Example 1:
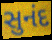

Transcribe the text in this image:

સુનંદ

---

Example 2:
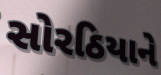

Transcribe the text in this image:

સોરઠિયાને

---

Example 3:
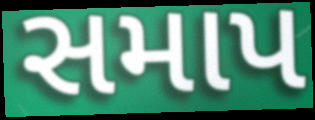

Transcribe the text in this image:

સમાપ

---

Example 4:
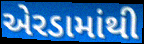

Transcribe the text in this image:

એરડામાંથી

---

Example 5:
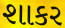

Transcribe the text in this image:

શાકર